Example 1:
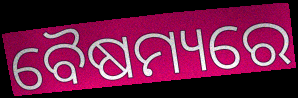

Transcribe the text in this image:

ବୈଷମ୍ୟରେ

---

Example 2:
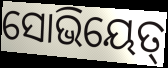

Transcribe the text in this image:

ସୋଭିୟେତ୍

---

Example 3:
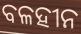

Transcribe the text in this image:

ବଳହୀନ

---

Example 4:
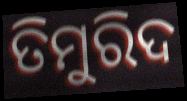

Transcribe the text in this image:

ତିମୁରିଦ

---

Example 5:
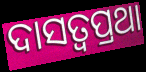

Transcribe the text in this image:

ଦାସତ୍ୱପ୍ରଥା